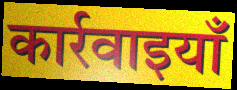
कार्रवाइयाँ